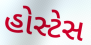
હોસ્ટેસ